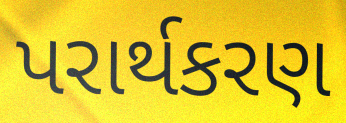
પરાર્થકરણ